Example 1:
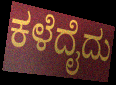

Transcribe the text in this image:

ಕಳೆದೈದು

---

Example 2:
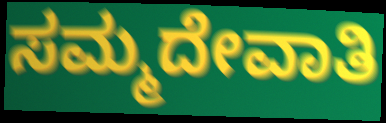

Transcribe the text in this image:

ಸಮ್ಮದೇವಾತಿ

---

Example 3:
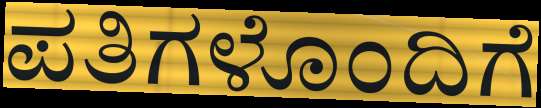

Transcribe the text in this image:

ಪತಿಗಳೊಂದಿಗೆ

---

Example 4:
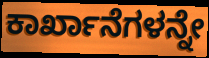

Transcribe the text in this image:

ಕಾರ್ಖಾನೆಗಳನ್ನೇ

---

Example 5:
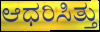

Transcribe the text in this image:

ಆಧರಿಸಿತ್ತು